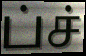
ப்ச்